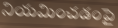
నియమించడంపై